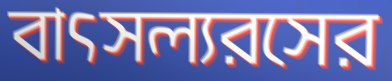
বাৎসল্যরসের